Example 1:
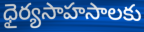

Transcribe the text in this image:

ధైర్యసాహసాలకు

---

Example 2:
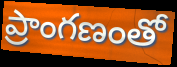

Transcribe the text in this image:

ప్రాంగణంతో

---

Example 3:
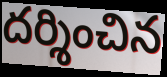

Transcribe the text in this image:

దర్శించిన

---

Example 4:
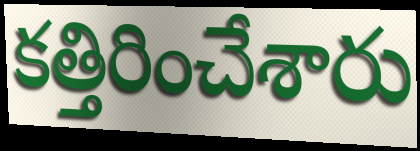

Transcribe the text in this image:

కత్తిరించేశారు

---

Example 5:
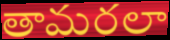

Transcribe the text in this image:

తామరలా